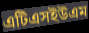
এটিএসইউএম